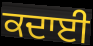
ਕਦਾਈ